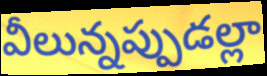
వీలున్నప్పుడల్లా